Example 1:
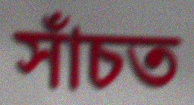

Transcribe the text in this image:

সাঁচত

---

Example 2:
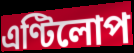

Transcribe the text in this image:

এণ্টিলোপ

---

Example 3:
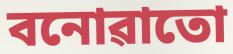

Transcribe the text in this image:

বনোৱাতো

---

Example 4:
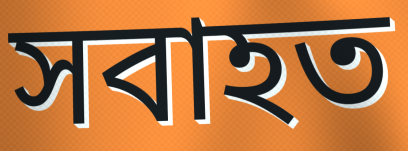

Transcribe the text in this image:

সবাহত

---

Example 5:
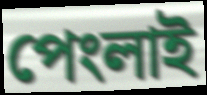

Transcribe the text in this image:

পেংলাই